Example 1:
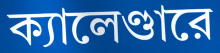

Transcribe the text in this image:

ক্যালেণ্ডারে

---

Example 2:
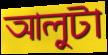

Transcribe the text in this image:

আলুটা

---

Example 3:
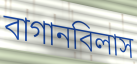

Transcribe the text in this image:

বাগানবিলাস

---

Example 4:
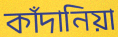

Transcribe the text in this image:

কাঁদানিয়া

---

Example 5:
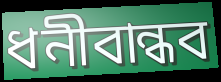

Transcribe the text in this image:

ধনীবান্ধব